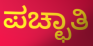
ಪಚ್ಛಾತಿ